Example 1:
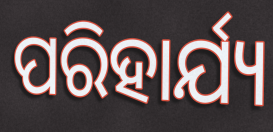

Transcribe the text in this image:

ପରିହାର୍ଯ୍ୟ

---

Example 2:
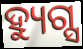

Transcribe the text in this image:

ହ୍ୟୁଗ୍ସ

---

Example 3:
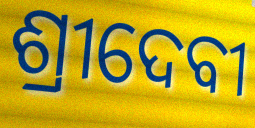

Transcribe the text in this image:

ଶ୍ରୀଦେବୀ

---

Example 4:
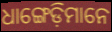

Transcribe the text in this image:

ଧାଙ୍ଗେଡ଼ିମାନେ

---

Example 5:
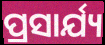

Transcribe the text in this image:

ପ୍ରସାର୍ଯ୍ୟ